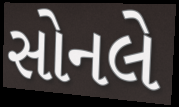
સોનલે